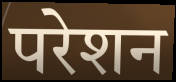
परेशन